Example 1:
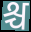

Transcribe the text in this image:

श्च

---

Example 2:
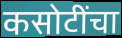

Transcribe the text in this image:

कसोटींचा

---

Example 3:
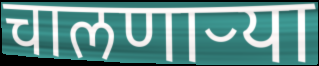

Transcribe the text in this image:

चालणाऱ्या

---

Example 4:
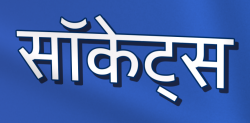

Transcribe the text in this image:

सॉकेट्स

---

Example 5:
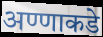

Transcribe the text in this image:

अण्णाकडे